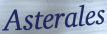
Asterales